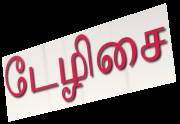
டேழிசை